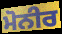
ਮੋਨੀਰ